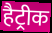
हैट्रीक